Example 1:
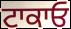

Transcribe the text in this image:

ਟਾਕਾਓ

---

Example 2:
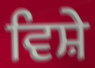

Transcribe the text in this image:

ਵਿਸ਼ੇ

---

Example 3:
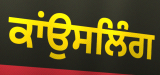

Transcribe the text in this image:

ਕਾਂਉਸਲਿੰਗ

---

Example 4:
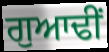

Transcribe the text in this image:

ਗੁਆਢੀਂ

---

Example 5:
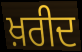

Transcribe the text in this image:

ਖ਼ਰੀਦ